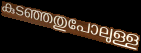
കുടഞ്ഞതുപോലുള്ള